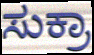
ಸುಕ್ರಾ